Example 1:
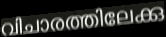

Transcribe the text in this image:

വിചാരത്തിലേക്കു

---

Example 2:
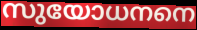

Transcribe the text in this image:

സുയോധനനെ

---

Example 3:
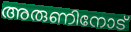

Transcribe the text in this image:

അരുണിനോട്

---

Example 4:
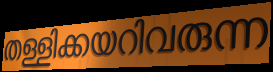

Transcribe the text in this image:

തള്ളിക്കയറിവരുന്ന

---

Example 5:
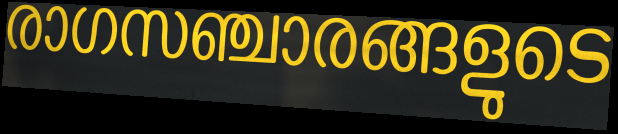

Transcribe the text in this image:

രാഗസഞ്ചാരങ്ങളുടെ